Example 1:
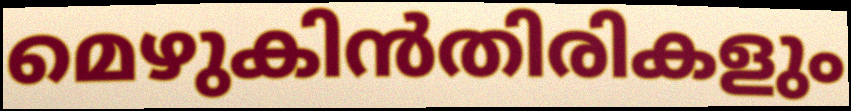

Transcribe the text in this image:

മെഴുകിൻതിരികളും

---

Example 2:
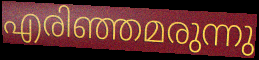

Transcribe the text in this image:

എരിഞ്ഞമരുന്നു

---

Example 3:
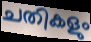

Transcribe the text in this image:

ചതികളും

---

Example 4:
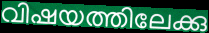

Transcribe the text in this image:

വിഷയത്തിലേക്കു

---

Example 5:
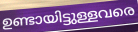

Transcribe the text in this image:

ഉണ്ടായിട്ടുള്ളവരെ